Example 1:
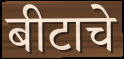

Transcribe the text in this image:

बीटाचे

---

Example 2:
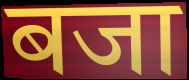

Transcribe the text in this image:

बजा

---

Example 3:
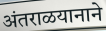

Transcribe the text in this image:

अंतराळयानाने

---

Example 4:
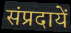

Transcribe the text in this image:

संप्रदायें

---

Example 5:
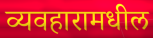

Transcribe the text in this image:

व्यवहारामधील